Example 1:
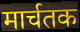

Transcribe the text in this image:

मार्चतक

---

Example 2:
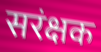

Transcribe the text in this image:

सरंक्षक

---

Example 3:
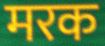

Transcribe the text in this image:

मरक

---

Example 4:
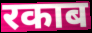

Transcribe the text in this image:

रकाब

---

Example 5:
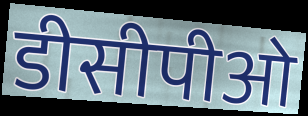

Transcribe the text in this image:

डीसीपीओ